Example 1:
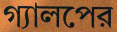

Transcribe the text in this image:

গ্যালপের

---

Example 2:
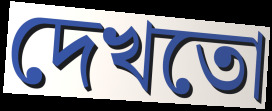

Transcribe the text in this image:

দেখতো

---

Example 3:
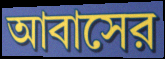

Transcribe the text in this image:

আবাসের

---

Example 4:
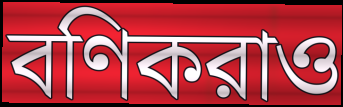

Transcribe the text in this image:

বণিকরাও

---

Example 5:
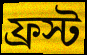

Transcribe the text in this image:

ফ্রস্ট